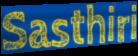
Sasthiri